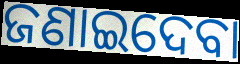
ଜଣାଇଦେବା